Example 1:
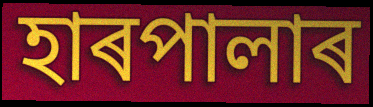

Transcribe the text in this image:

হাৰপালাৰ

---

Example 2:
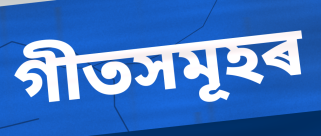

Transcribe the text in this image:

গীতসমূহৰ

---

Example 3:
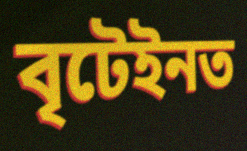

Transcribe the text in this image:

বৃটেইনত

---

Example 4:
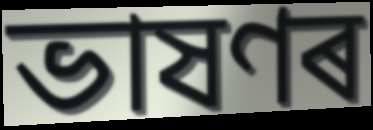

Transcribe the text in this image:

ভাষণৰ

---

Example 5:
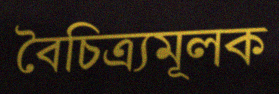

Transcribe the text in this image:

বৈচিত্ৰ্যমূলক